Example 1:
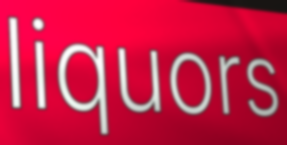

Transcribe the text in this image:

liquors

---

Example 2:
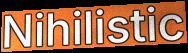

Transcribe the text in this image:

Nihilistic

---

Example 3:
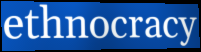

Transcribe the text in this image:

ethnocracy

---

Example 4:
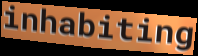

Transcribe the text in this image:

inhabiting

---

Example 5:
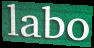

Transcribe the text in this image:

labo